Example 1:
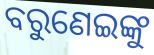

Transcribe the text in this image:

ବରୁଣେଇଙ୍କୁ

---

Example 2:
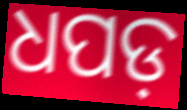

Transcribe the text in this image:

ଧପଡ଼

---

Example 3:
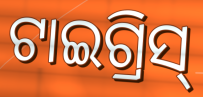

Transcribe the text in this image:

ଟାଇଗ୍ରିସ୍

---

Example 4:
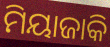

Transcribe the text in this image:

ମିୟାଜାକି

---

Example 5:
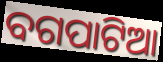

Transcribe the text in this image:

ବଗପାଟିଆ